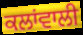
ਕਲਾਂਵਾਲੀ